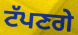
ਟੱਪਣਗੇ